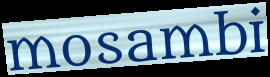
mosambi